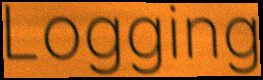
Logging